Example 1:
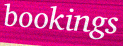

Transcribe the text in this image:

bookings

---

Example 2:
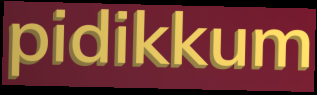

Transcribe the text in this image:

pidikkum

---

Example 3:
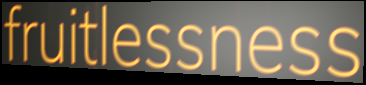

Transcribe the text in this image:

fruitlessness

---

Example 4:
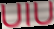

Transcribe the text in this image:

UIU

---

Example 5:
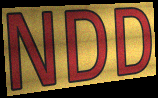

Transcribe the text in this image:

NDD